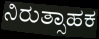
ನಿರುತ್ಸಾಹಕ